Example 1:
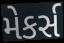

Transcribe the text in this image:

મેકર્સ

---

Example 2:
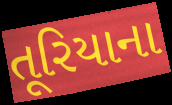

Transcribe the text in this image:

તૂરિયાના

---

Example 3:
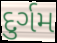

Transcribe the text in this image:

દુર્ગમ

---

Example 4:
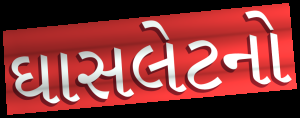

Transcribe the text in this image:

ઘાસલેટનો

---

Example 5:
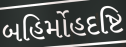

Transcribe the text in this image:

બહિર્મોહદષ્ટિ